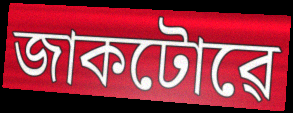
জাকটোৱে